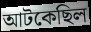
আটকেছিল